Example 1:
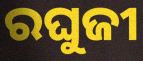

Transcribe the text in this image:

ରଘୁଜୀ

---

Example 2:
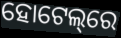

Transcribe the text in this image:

ହୋଟେଲ୍‌ରେ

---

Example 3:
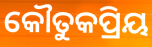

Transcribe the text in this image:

କୌତୁକପ୍ରିୟ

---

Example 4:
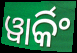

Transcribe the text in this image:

ୱାର୍କିଂ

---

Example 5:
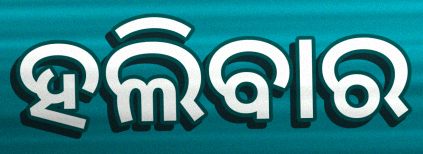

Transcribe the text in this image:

ହଲିବାର